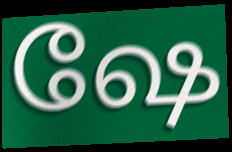
ஷே